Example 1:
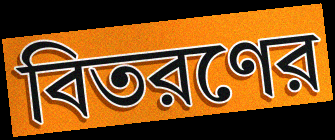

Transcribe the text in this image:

বিতরণের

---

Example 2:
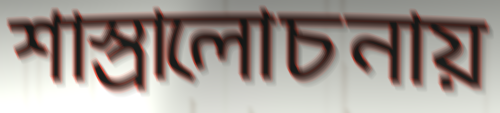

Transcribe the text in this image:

শাস্ত্রালোচনায়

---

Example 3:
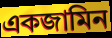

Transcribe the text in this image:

একজামিন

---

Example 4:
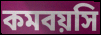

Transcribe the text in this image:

কমবয়সি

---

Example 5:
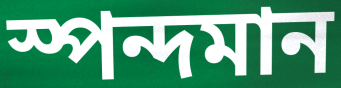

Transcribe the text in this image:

স্পন্দমান